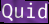
Quid